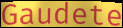
Gaudete